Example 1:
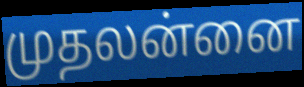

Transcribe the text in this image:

முதலன்னை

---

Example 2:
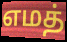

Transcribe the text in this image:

எமத்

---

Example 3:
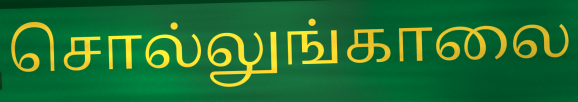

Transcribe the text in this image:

சொல்லுங்காலை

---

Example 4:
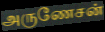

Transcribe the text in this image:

அருணேசன்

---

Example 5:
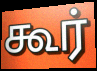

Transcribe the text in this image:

கூர்